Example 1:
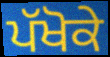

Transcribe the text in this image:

ਪੱਖੋਕੇ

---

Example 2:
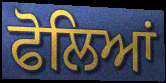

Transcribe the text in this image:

ਫੋਲਿਆਂ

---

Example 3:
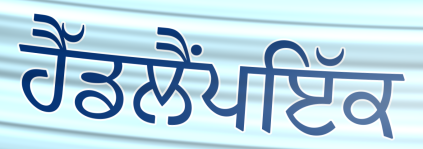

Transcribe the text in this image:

ਹੈੱਡਲੈਂਪਇੱਕ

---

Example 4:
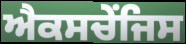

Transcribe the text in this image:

ਐਕਸਚੇਂਜਿਸ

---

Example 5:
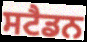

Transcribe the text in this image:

ਸਟੈਡਨ